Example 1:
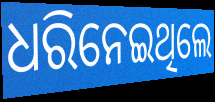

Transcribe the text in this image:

ଧରିନେଇଥିଲେ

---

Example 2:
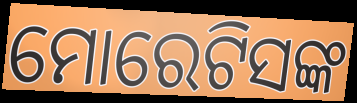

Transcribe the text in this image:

ମୋରେଟିସଙ୍କ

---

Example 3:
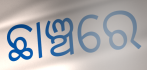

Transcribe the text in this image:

ଛାଞ୍ଚରେ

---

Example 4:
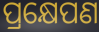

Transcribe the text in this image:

ପ୍ରକ୍ଷେପଣ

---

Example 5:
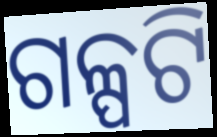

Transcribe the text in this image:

ଗଳ୍ପଟି